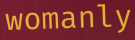
womanly